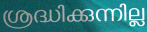
ശ്രദ്ധിക്കുന്നില്ല